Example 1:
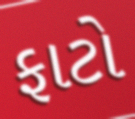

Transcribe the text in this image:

ફાટો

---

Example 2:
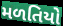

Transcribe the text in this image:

મળતિયો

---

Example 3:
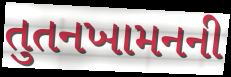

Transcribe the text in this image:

તુતનખામનની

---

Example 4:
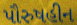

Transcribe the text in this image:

પૌરુષહીન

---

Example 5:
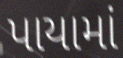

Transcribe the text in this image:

પાયામાં